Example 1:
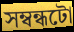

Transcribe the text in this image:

সম্বন্ধটো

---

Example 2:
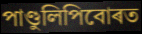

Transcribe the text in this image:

পাণ্ডুলিপিবোৰত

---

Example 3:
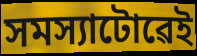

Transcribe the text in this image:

সমস্যাটোৱেই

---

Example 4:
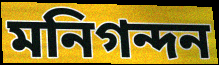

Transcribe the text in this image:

মনিগন্দন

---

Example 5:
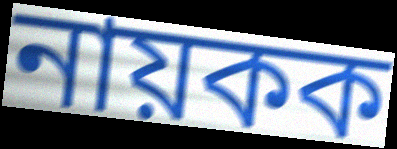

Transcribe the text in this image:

নায়কক